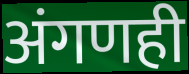
अंगणही